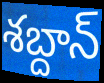
శబ్దాన్